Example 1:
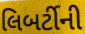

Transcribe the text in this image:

લિબર્ટીની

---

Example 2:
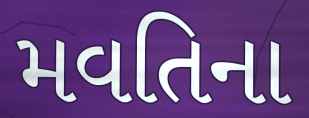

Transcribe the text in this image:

મવતિના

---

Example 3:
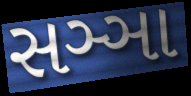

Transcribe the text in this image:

સઞ્ઞા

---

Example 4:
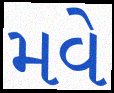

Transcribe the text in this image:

મવે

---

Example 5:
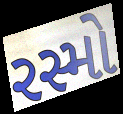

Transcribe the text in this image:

રસ્મો